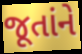
જૂતાંને